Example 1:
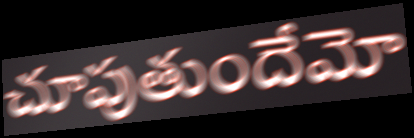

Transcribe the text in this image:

చూపుతుందేమో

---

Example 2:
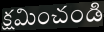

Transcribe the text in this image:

క్షమించండి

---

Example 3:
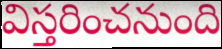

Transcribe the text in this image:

విస్తరించనుంది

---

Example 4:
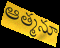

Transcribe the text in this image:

ఆత్మనూ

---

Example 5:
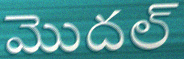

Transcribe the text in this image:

మొదల్